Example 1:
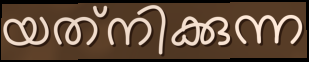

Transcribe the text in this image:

യത്‌നിക്കുന്ന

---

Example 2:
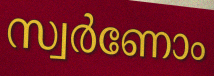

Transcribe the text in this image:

സ്വർണോം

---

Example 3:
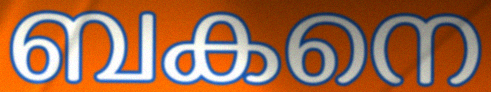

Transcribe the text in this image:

ബകനെ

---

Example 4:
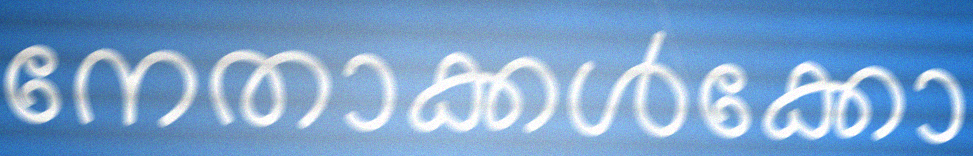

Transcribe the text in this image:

നേതാക്കൾക്കോ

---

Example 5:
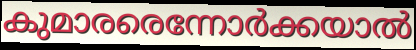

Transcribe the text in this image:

കുമാരരെന്നോർക്കയാൽ